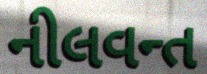
નીલવન્ત